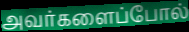
அவர்களைப்போல்